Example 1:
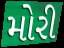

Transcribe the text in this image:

મોરી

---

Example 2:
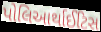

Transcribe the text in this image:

પોલિઆર્થાઈટિસ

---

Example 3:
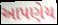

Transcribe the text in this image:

આપણેય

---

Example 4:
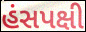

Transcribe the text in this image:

હંસપક્ષી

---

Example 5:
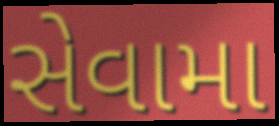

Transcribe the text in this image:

સેવામા